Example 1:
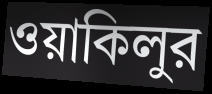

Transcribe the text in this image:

ওয়াকিলুর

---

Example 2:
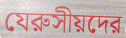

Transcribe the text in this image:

যেরুসীয়দের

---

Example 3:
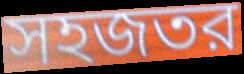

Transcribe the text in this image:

সহজতর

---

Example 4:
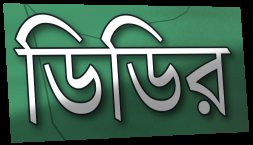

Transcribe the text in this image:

ডিডির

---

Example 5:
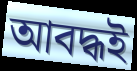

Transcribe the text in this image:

আবদ্ধই